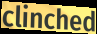
clinched